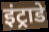
इंट्राडे